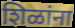
शिळांना